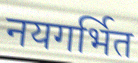
नयगर्भित